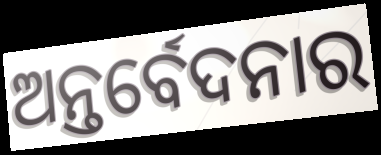
ଅନ୍ତର୍ବେଦନାର